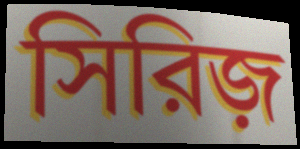
সিরিজ়